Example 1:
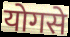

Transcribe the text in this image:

योगसे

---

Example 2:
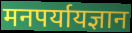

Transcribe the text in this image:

मनपर्यायज्ञान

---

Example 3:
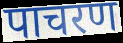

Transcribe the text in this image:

पाचरण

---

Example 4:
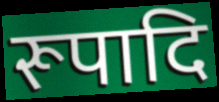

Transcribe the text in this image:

रूपादि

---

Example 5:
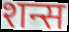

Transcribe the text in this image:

शन्स